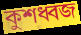
কুশধ্বজ